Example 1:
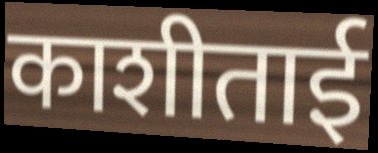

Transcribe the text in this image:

काशीताई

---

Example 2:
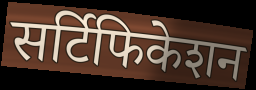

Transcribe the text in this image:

सर्टिफिकेशन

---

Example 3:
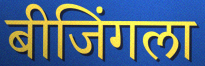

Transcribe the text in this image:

बीजिंगला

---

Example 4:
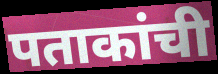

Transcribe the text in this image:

पताकांची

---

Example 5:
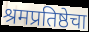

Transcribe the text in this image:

श्रमप्रतिष्ठेचा